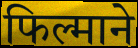
फिल्‍माने